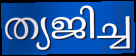
ത്യജിച്ച